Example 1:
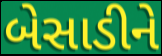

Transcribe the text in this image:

બેસાડીને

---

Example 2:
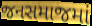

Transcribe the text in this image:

જનસમાજમાં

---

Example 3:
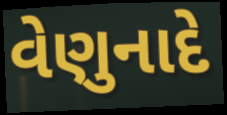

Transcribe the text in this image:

વેણુનાદે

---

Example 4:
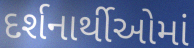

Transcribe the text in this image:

દર્શનાર્થીઓમાં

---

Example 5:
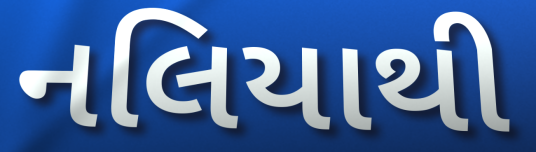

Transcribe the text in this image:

નલિયાથી